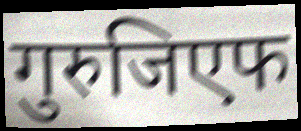
गुरुजिएफ